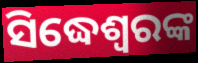
ସିଦ୍ଧେଶ୍ୱରଙ୍କ